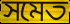
সমেত